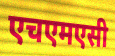
एचएमएसी